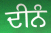
ਦੀਨੰ